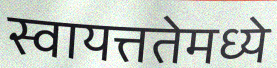
स्वायत्ततेमध्ये